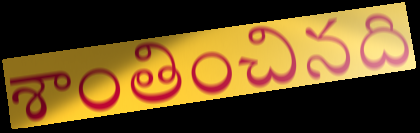
శాంతించినది